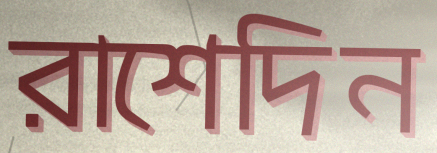
রাশেদিন